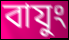
বাযুং